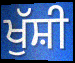
ਖੁੱਸ਼ੀ